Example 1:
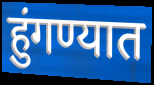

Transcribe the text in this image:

हुंगण्यात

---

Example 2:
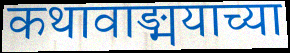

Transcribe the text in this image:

कथावाङ्मयाच्या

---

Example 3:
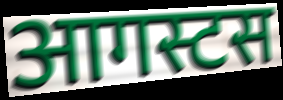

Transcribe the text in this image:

आगस्टस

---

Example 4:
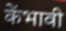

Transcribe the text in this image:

केंभावी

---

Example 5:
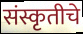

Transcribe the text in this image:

संस्कृतीचे